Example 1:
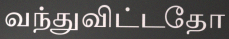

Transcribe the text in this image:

வந்துவிட்டதோ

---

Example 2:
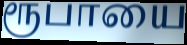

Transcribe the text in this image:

ரூபாயை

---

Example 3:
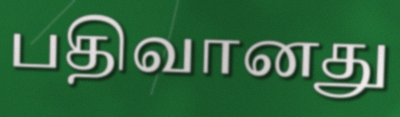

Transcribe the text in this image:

பதிவானது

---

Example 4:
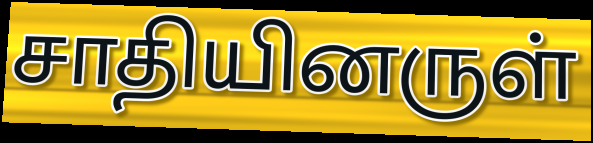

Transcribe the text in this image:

சாதியினருள்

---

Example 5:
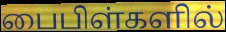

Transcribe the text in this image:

பைபிள்களில்